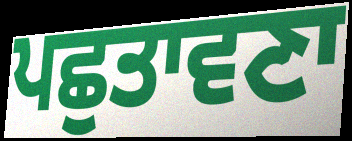
ਪਛੁਤਾਵਣਾ